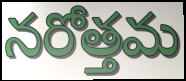
నరోత్తమ